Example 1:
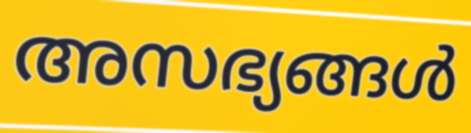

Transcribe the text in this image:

അസഭ്യങ്ങൾ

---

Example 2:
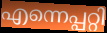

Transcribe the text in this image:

എന്നെപ്പറ്റി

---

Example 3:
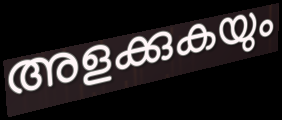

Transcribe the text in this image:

അളക്കുകയും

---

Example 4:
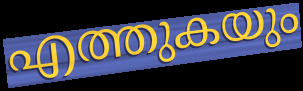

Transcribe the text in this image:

എത്തുകയും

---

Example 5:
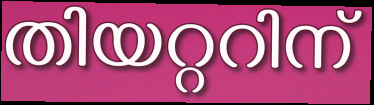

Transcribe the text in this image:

തിയറ്ററിന്